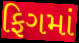
ફિગમાં